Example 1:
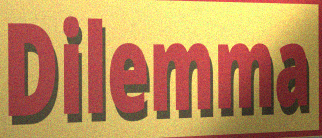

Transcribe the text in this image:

Dilemma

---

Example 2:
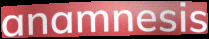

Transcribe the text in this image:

anamnesis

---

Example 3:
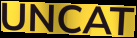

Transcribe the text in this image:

UNCAT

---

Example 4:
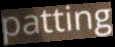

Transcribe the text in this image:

patting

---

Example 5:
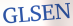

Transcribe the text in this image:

GLSEN